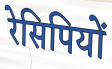
रेसिपियों